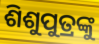
ଶିଶୁପୁତ୍ରଙ୍କୁ